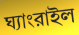
ঘ্যাংরাইল